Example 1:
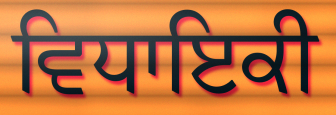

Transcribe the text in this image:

ਵਿਧਾਇਕੀ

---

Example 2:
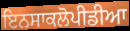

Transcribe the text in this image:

ਇਨਸਾਕਲੋਪੀਡੀਆ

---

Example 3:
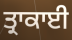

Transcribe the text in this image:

ਤ੍ਰਾਕਾਈ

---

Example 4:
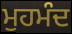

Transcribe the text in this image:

ਮੁਹਮੰਦ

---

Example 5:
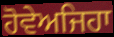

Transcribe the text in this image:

ਹੋਵੇਅਜਿਹਾ